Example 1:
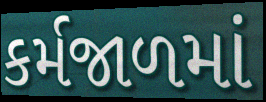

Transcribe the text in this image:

કર્મજાળમાં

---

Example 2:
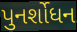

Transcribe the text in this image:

પુનર્શોધન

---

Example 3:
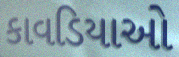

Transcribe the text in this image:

કાવડિયાઓ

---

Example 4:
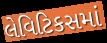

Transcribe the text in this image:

લેવિટિકસમાં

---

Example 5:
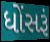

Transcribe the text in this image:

ધોંસરૂં